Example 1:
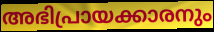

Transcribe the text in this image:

അഭിപ്രായക്കാരനും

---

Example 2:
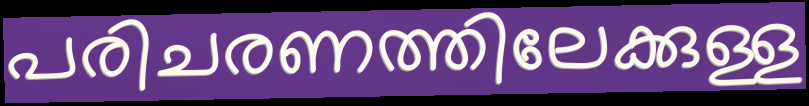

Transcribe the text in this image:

പരിചരണത്തിലേക്കുള്ള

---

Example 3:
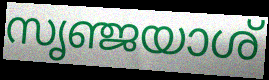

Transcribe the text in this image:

സൃഞ്ജയാശ്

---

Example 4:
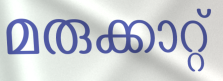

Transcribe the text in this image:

മരുക്കാറ്റ്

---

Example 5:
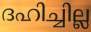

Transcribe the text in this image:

ദഹിച്ചില്ല